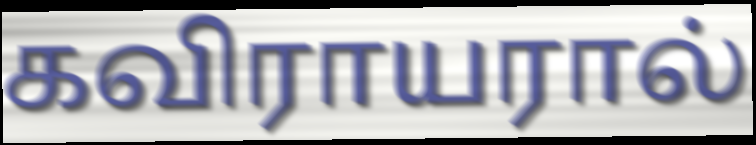
கவிராயரால்